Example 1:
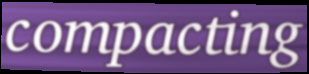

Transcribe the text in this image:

compacting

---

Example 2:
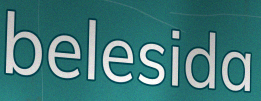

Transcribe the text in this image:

belesida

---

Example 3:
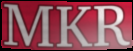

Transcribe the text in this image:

MKR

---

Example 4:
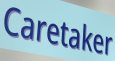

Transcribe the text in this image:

Caretaker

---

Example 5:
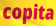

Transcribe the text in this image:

copita